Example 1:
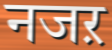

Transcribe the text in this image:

नजऱ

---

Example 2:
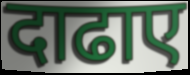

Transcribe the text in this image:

दाढाए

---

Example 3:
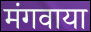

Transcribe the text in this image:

मंगवाया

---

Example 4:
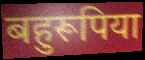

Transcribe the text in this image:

बहुरूपिया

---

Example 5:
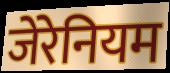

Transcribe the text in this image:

जेरेनियम